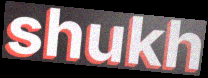
shukh